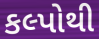
કલ્પોથી